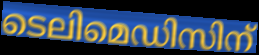
ടെലിമെഡിസിന്